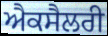
ਐਕਸੈਲਰੀ